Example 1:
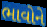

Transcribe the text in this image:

ભાવોને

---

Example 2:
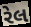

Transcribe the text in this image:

રેલ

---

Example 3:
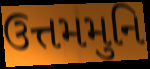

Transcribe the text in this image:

ઉત્તમમુનિ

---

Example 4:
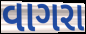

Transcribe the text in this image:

વાગરા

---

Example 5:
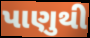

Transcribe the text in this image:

પાણુથી